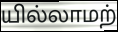
யில்லாமற்